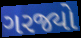
ગરજ્યો